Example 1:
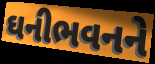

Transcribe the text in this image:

ઘનીભવનને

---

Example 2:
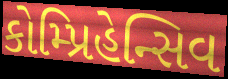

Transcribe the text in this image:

કોમ્પ્રિહેન્સિવ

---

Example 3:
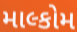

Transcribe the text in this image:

માલ્કોમ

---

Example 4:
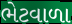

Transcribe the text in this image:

ભેટવાળા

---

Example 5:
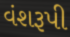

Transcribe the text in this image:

વંશરૂપી